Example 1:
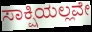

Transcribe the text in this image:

ಸಾಕ್ಷಿಯಲ್ಲವೇ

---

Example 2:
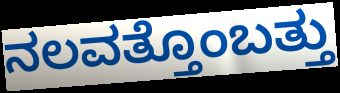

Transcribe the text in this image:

ನಲವತ್ತೊಂಬತ್ತು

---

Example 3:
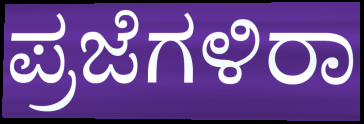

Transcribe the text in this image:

ಪ್ರಜೆಗಳಿರಾ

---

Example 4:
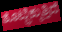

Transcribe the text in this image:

ತೊಟ್ಟಿಕ್ಕುತ್ತಿದೆ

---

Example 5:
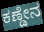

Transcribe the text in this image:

ಕಣ್ಡೇನ